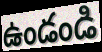
ఉండండి